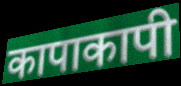
कापाकापी